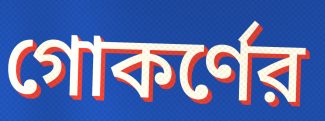
গোকর্ণের